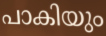
പാകിയും